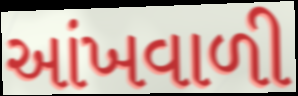
આંખવાળી